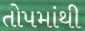
તોપમાંથી